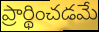
ప్రార్థించడమే